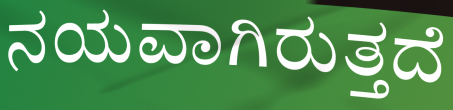
ನಯವಾಗಿರುತ್ತದೆ